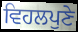
ਵਿਹਲਪੁਣੇ